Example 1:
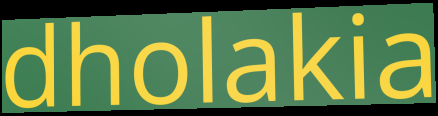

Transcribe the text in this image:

dholakia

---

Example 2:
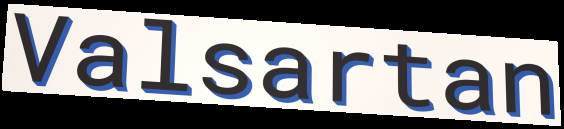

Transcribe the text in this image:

Valsartan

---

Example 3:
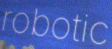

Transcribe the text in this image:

robotic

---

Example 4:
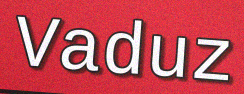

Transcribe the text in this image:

Vaduz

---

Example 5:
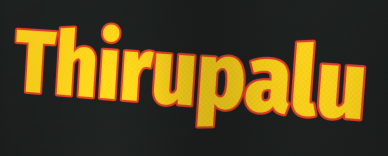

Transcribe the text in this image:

Thirupalu